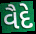
વૈદે